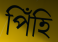
পিঁহি